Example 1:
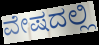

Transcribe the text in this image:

ವೇಷದಲ್ಲಿ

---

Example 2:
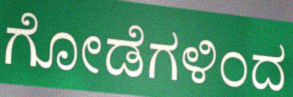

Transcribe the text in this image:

ಗೋಡೆಗಳಿಂದ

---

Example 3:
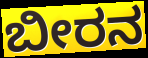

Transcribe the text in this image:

ಬೀರನ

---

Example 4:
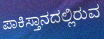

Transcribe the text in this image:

ಪಾಕಿಸ್ತಾನದಲ್ಲಿರುವ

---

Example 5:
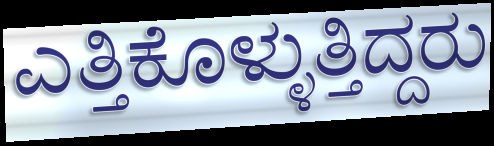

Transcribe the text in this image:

ಎತ್ತಿಕೊಳ್ಳುತ್ತಿದ್ದರು